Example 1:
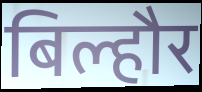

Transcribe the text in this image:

बिल्हौर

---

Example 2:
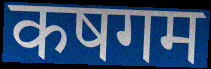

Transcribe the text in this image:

कषगम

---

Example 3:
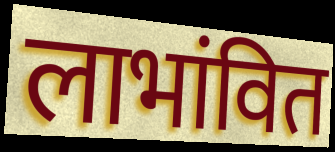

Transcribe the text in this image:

लाभांवित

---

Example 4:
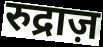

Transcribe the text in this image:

रुद्राज़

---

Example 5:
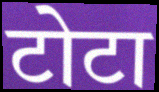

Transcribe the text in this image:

टोटा